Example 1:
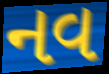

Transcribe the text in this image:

નવ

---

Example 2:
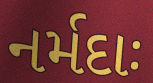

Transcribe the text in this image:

નર્મદાઃ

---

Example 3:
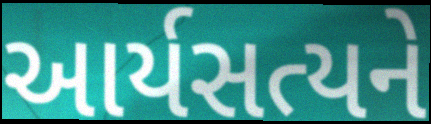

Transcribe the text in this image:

આર્યસત્યને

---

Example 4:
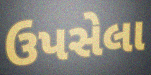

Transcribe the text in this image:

ઉપસેલા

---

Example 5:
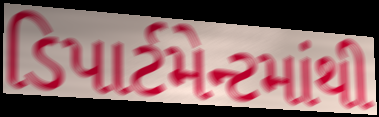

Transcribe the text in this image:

ડિપાર્ટમેન્ટમાંથી